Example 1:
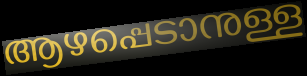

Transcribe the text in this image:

ആഴപ്പെടാനുള്ള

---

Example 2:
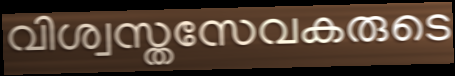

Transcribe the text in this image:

വിശ്വസ്തസേവകരുടെ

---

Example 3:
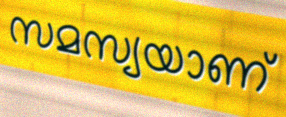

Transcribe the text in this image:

സമസ്യയാണ്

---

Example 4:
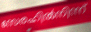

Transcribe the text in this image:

സേരഹിൽനിന്ന്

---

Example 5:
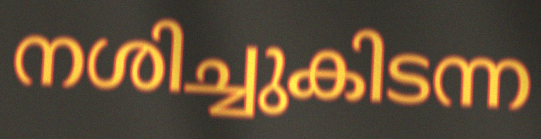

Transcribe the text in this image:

നശിച്ചുകിടന്ന